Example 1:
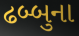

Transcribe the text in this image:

ઢબ્બુના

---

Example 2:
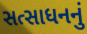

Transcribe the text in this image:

સત્સાધનનું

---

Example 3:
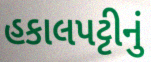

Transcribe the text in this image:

હકાલપટ્ટીનું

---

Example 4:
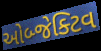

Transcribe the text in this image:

ઓબ્જેક્ટિવ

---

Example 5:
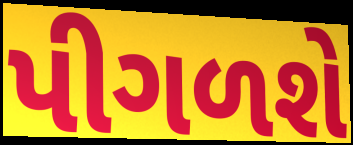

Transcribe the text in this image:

પીગળશે